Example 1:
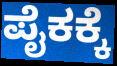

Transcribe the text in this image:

ಪೈಕಕ್ಕೆ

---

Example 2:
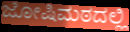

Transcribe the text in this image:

ಜೋಷಿಮಠದಲ್ಲಿ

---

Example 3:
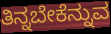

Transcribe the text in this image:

ತಿನ್ನಬೇಕೆನ್ನುವ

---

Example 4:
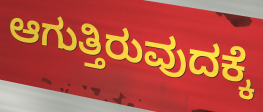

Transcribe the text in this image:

ಆಗುತ್ತಿರುವುದಕ್ಕೆ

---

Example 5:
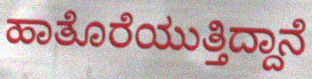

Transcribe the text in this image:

ಹಾತೊರೆಯುತ್ತಿದ್ದಾನೆ